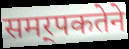
समर्पकतेने